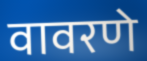
वावरणे